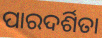
ପାରଦର୍ଶିତା